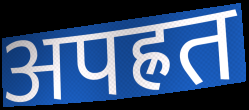
अपह्रत